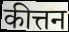
कीत्तन